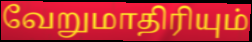
வேறுமாதிரியும்